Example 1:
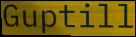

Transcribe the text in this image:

Guptill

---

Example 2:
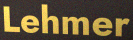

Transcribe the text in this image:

Lehmer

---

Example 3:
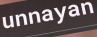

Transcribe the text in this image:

unnayan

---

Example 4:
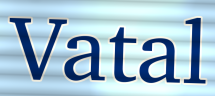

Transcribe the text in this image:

Vatal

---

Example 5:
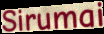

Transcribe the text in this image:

Sirumai